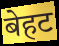
बेहट